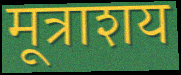
मूत्राशय